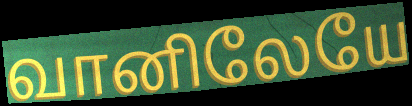
வானிலேயே